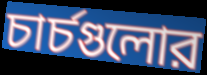
চার্চগুলোর